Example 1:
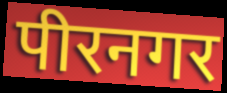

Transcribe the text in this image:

पीरनगर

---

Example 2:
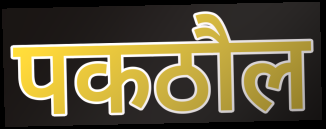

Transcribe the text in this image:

पकठौल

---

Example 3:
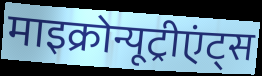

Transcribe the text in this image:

माइक्रोन्यूट्रीएंट्स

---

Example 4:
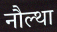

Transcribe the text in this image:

नौल्था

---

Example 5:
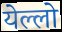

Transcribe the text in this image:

येल्लो